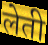
लेती